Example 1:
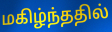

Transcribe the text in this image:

மகிழ்ந்ததில்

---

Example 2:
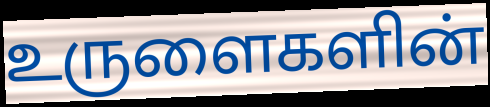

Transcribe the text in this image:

உருளைகளின்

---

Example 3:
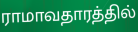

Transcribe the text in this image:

ராமாவதாரத்தில்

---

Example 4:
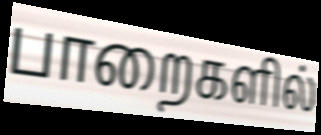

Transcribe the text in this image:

பாறைகளில்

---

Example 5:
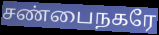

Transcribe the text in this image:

சண்பைநகரே